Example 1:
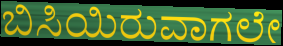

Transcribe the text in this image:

ಬಿಸಿಯಿರುವಾಗಲೇ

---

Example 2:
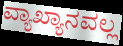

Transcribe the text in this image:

ವ್ಯಾಖ್ಯಾನವಲ್ಲ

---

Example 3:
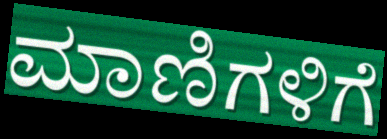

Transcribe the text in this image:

ಮಾಣಿಗಳಿಗೆ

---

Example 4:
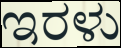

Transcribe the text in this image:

ಇರಳು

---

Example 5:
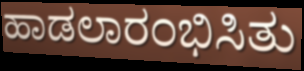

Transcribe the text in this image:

ಹಾಡಲಾರಂಭಿಸಿತು